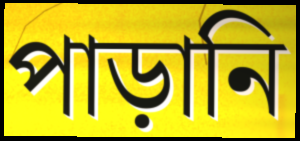
পাড়ানি